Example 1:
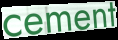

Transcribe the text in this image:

cement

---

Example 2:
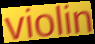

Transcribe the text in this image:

violin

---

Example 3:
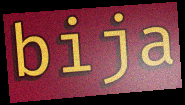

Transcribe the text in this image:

bija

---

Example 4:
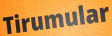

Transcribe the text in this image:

Tirumular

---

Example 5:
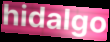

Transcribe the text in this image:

hidalgo